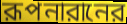
রূপনারানের